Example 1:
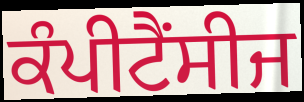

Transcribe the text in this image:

ਕੰਪੀਟੈਂਸੀਜ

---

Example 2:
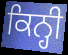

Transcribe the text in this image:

ਕਿਨ੍ਹੀ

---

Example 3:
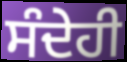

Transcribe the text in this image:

ਸੰਦੇਹੀ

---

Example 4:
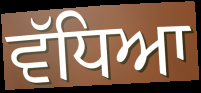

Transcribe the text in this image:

ਵੱਧਿਆ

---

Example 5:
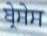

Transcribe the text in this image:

ਬ੍ਰੇਸੇਸ